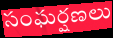
సంఘర్షణలు